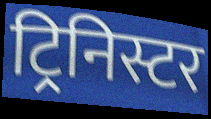
ट्रिनिस्टर